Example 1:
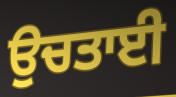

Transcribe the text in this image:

ਉਚਤਾਈ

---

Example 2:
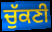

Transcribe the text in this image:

ਚੁੱਕਣੀ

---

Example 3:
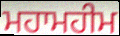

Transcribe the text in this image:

ਮਹਾਮਹੀਮ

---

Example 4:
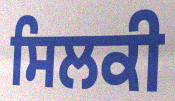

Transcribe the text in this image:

ਸਿਲਕੀ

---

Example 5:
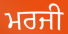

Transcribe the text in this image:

ਮਰਜੀ